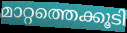
മാറ്റത്തെക്കൂടി